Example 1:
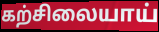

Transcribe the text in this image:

கற்சிலையாய்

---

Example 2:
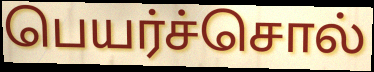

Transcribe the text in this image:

பெயர்ச்சொல்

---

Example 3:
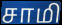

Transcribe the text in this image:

சாமி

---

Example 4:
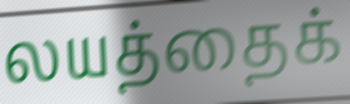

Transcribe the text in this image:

லயத்தைக்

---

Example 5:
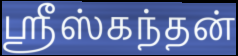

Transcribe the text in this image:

ஸ்ரீஸ்கந்தன்